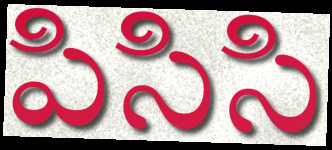
పిసిసి